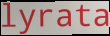
lyrata